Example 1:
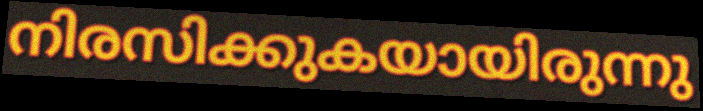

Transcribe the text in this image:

നിരസിക്കുകയായിരുന്നു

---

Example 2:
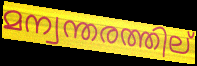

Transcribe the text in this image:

മന്വന്തരത്തില്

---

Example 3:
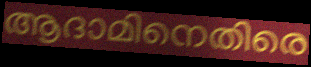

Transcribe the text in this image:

ആദാമിനെതിരെ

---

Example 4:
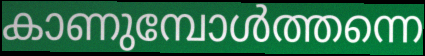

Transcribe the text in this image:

കാണുമ്പോൾത്തന്നെ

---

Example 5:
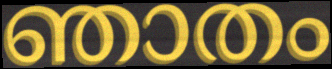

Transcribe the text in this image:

ഞാതം